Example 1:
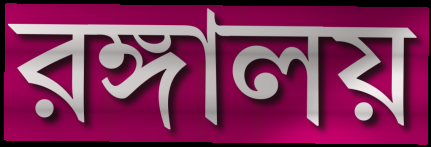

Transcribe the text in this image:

রঙ্গালয়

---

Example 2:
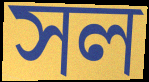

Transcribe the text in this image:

সল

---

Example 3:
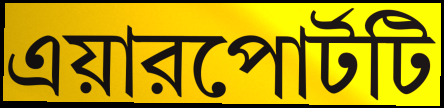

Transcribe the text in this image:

এয়ারপোর্টটি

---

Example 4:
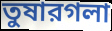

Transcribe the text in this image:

তুষারগলা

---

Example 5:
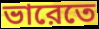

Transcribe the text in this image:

ভারেতে